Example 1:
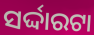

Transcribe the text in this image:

ସର୍ଦ୍ଦାରଟା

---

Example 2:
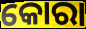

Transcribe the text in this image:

କୋରା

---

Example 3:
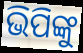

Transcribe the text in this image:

ଭିପିଙ୍କୁ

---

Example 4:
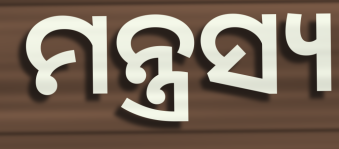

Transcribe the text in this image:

ମନ୍ତ୍ରସ୍ୟ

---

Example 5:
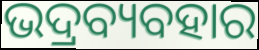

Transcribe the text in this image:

ଭଦ୍ରବ୍ୟବହାର